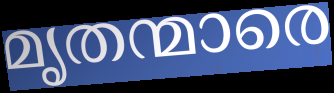
മൃതന്മാരെ